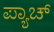
ಪ್ಯಾಚ್